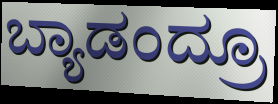
ಬ್ಯಾಡಂದ್ರೂ